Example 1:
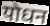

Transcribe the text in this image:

योधन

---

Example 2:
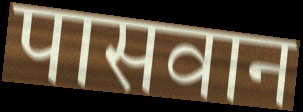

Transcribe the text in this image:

पासवान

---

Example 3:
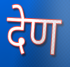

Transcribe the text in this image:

देण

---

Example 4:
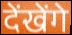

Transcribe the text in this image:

देंखेंगे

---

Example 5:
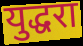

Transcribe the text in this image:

युद्धरा